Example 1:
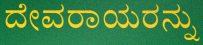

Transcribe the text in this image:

ದೇವರಾಯರನ್ನು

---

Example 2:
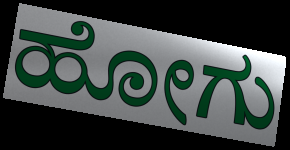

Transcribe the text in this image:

ಹೋಗು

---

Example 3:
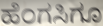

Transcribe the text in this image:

ಹೆಂಗಸಿಗೂ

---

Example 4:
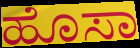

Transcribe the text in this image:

ಹೊಸಾ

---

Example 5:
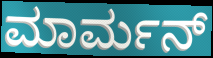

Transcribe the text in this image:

ಮಾರ್ಮನ್